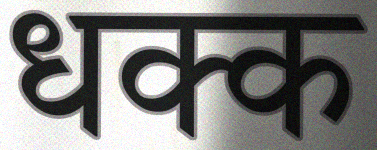
धक्क